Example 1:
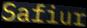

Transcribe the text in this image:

Safiur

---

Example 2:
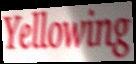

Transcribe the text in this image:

Yellowing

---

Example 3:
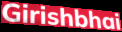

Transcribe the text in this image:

Girishbhai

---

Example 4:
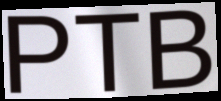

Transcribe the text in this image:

PTB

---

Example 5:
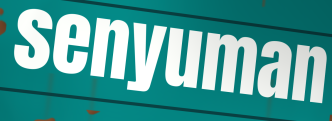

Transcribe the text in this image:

senyuman